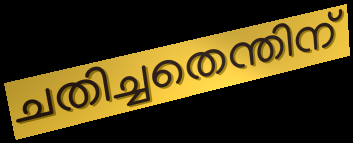
ചതിച്ചതെന്തിന്